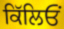
ਕਿੱਲਿਓਂ